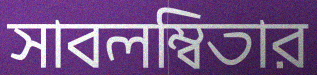
সাবলম্বিতার